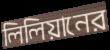
লিলিয়ানের